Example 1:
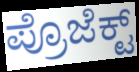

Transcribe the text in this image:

ಪ್ರೊಜೆಕ್ಟ್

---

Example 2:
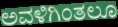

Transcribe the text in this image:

ಅವಳಿಗಿಂತಲೂ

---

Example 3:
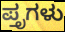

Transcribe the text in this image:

ಪ್ತೃಗಳು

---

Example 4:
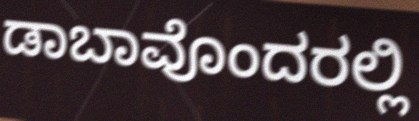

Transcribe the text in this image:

ಡಾಬಾವೊಂದರಲ್ಲಿ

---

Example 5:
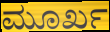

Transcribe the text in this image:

ಮೂರ್ಖ